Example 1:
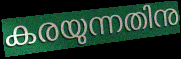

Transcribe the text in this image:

കരയുന്നതിനു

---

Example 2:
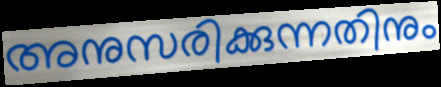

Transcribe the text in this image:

അനുസരിക്കുന്നതിനും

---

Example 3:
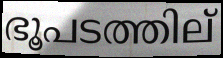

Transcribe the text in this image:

ഭൂപടത്തില്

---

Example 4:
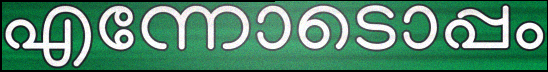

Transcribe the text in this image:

എന്നോടൊപ്പം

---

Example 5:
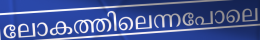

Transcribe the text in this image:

ലോകത്തിലെന്നപോലെ